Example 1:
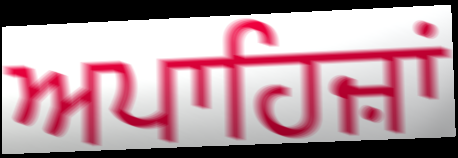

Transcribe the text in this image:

ਅਪਾਹਿਜ਼ਾਂ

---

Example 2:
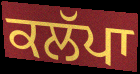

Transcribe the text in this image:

ਕਲੱਪਾ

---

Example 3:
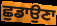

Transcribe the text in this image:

ਛੁਡਾਉਣਾ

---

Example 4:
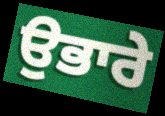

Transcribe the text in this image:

ਉਭਾਰੇ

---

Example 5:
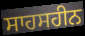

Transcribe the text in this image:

ਸਾਹਸਹੀਨ